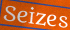
Seizes